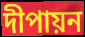
দীপায়ন